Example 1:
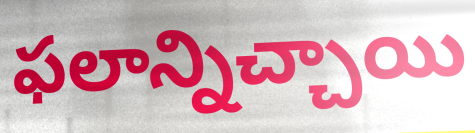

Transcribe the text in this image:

ఫలాన్నిచ్చాయి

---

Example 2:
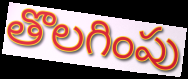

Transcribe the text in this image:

తొలగింపు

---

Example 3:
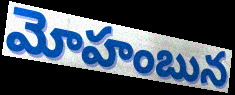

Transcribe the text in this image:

మోహంబున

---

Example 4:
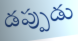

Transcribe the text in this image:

డప్పుడు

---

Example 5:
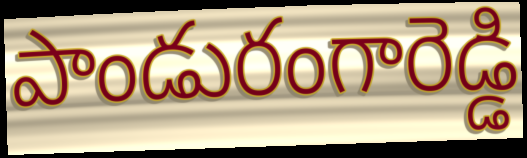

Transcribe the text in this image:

పాండురంగారెడ్డి